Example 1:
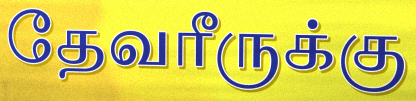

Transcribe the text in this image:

தேவரீருக்கு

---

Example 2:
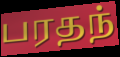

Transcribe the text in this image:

பரதந்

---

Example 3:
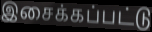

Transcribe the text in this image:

இசைக்கப்பட்டு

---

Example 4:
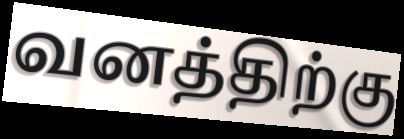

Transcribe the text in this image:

வனத்திற்கு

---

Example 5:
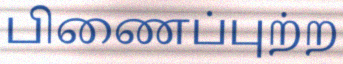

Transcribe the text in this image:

பிணைப்புற்ற